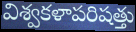
విశ్వకళాపరిషత్తు